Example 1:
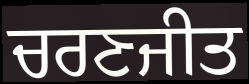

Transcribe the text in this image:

ਚਰਣਜੀਤ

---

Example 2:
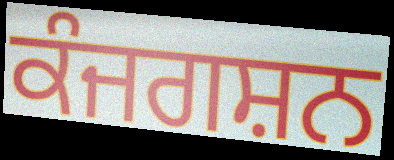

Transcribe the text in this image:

ਕੰਜਗਸ਼ਨ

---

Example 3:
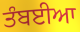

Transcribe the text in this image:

ਤੰਬਈਆ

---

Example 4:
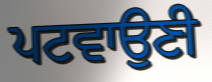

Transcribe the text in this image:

ਪਟਵਾਉਣੀ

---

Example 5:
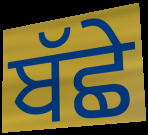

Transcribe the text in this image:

ਬੱਛੇ